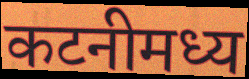
कटनीमध्य